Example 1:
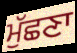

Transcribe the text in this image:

ਮੁੱਛਣਾ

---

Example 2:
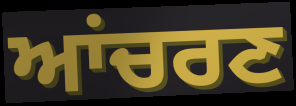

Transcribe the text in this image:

ਆਂਚਰਣ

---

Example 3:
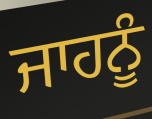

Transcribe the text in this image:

ਜਾਹਨੂੰ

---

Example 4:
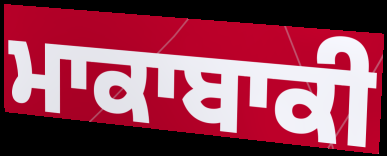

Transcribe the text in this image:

ਮਾਕਾਬਾਕੀ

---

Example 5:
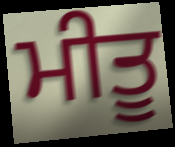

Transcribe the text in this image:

ਮੀਤੂ